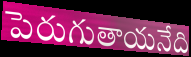
పెరుగుతాయనేది